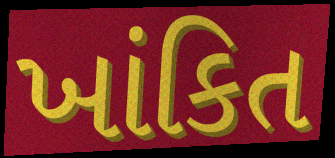
ખાંકિત